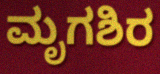
ಮೃಗಶಿರ